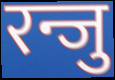
रन्जु